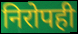
निरोपही